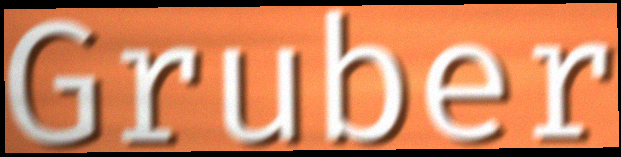
Gruber